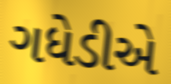
ગધેડીએ